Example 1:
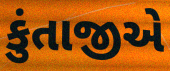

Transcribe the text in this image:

કુંતાજીએ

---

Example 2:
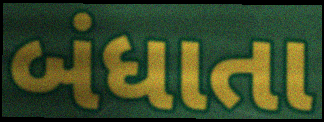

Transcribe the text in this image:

બંધાતા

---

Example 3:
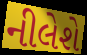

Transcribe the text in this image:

નીલેશે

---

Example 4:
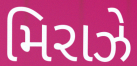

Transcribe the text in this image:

મિરાઝે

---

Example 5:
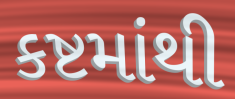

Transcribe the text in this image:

કષ્ટમાંથી